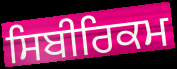
ਸਿਬੀਰਿਕਮ